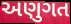
અણુગત